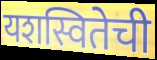
यशस्वितेची